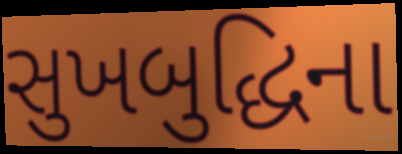
સુખબુદ્ધિના